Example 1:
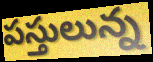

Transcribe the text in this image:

పస్తులున్న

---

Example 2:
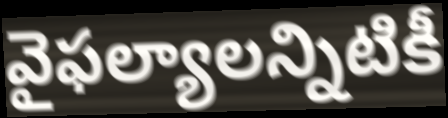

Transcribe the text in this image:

వైఫల్యాలన్నిటికీ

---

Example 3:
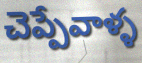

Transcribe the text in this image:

చెప్పేవాళ్ళ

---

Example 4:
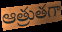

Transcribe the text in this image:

ఆత్రుతగా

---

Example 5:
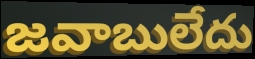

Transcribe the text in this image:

జవాబులేదు